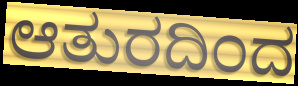
ಆತುರದಿಂದ